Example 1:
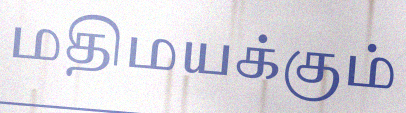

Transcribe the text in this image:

மதிமயக்கும்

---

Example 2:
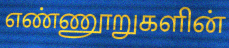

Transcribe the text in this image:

எண்ணூறுகளின்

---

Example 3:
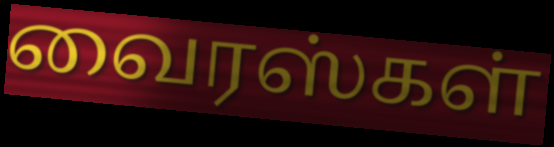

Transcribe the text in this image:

வைரஸ்கள்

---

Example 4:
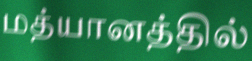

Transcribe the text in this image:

மத்யானத்தில்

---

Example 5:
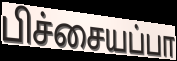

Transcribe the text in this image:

பிச்சையப்பா